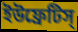
ইউফ্রেটিস্